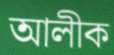
আলীক